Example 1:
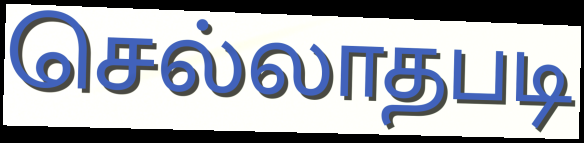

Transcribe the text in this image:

செல்லாதபடி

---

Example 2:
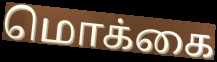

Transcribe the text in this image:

மொக்கை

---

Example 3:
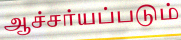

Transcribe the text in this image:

ஆச்சர்யப்படும்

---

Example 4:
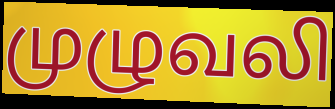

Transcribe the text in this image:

முழுவலி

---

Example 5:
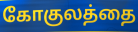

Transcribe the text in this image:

கோகுலத்தை